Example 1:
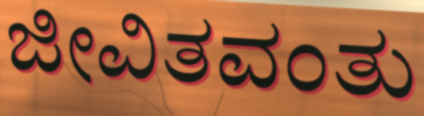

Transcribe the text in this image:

ಜೀವಿತವಂತು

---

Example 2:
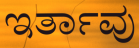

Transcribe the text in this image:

ಇರ್ತಾವು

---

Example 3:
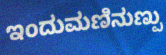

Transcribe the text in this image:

ಇಂದುಮಣಿನುಣ್ಪು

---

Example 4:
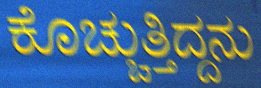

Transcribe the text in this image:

ಕೊಚ್ಚುತ್ತಿದ್ದನು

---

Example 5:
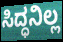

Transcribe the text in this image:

ಸಿದ್ಧನಿಲ್ಲ